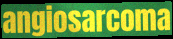
angiosarcoma